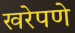
खरेपणे